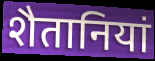
शैतानियां